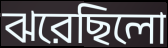
ঝরেছিলো